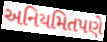
અનિયમિતપણે